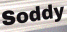
Soddy